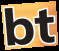
bt